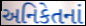
અનિકેતનાં